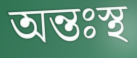
অন্তঃস্থ